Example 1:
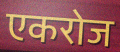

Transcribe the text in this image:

एकरोज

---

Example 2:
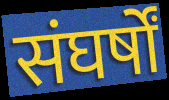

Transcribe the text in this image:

संघर्षों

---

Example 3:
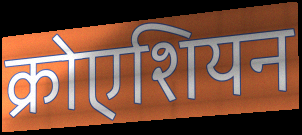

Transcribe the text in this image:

क्रोएशियन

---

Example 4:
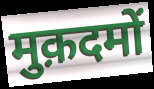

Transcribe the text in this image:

मुक़दमों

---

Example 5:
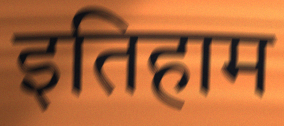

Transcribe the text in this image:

इतिहाम